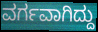
ವರ್ಗವಾಗಿದ್ದು